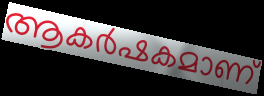
ആകർഷകമാണ്